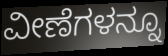
ವೀಣೆಗಳನ್ನೂ